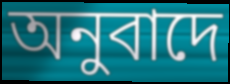
অনুবাদে